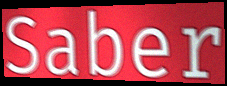
Saber